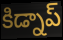
కిడ్నాప్